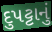
દુપટ્ટાનું